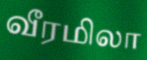
வீரமிலா